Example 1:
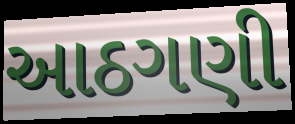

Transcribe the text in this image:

આઠગણી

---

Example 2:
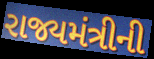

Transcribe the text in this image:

રાજ્યમંત્રીની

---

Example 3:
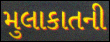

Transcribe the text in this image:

મુલાકાતની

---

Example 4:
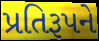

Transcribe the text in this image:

પ્રતિરૂપને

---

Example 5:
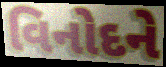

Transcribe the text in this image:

વિનોદને